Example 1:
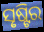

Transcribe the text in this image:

ସୃଷ୍ଟିର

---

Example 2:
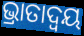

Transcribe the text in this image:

ଭ୍ରାତାଦ୍ୱୟ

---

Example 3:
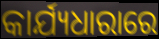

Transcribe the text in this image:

କାର୍ଯ୍ୟଧାରାରେ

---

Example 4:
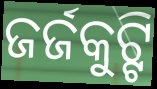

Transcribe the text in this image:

ଜର୍ଜକୁଟ୍ଟି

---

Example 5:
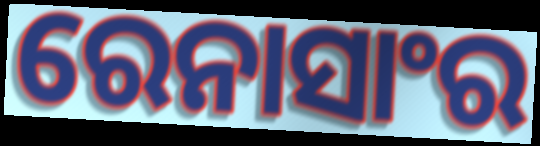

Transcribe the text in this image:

ରେନାସାଂର